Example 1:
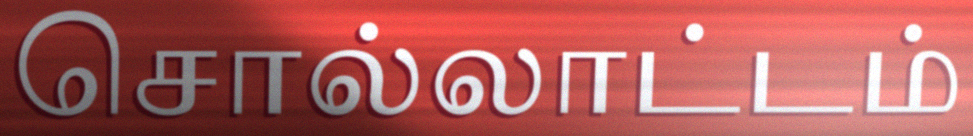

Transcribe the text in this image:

சொல்லாட்டம்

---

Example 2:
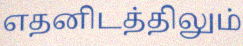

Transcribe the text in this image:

எதனிடத்திலும்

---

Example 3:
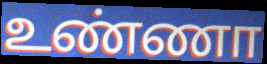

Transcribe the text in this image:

உண்ணா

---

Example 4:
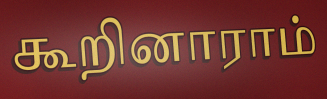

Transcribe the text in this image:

கூறினாராம்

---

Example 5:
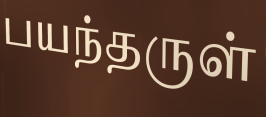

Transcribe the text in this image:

பயந்தருள்